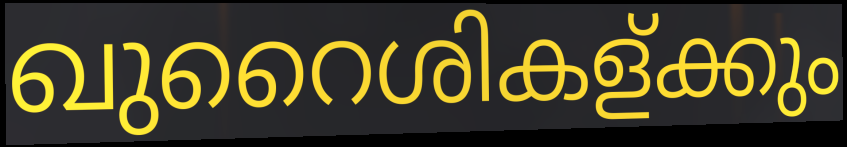
ഖുറൈശികള്ക്കും